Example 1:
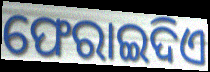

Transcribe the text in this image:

ଫେରାଇଦିଏ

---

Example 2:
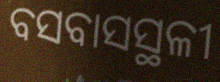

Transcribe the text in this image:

ବସବାସସ୍ଥଳୀ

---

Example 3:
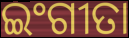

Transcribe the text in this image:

ଇଂଗୀତା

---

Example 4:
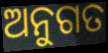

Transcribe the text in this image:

ଅନୁଗତ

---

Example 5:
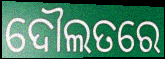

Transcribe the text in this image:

ଦୌଲତରେ